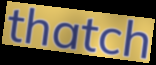
thatch